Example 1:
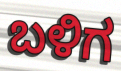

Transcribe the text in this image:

ಬಳಿಗ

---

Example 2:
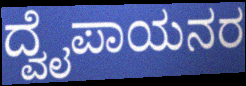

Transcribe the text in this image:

ದ್ವೈಪಾಯನರ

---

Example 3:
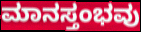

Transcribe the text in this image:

ಮಾನಸ್ತಂಭವು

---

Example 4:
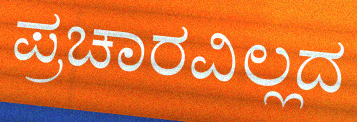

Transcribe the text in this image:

ಪ್ರಚಾರವಿಲ್ಲದ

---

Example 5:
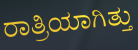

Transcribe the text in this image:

ರಾತ್ರಿಯಾಗಿತ್ತು